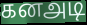
கனஅடி